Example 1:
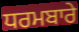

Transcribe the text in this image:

ਧਰਮਬਾਰੇ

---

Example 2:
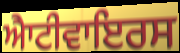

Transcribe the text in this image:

ਐਾਟੀਵਾਇਰਸ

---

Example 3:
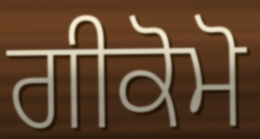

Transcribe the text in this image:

ਗੀਕੋਮੋ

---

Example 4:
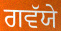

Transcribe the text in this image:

ਗਵੱਯੇ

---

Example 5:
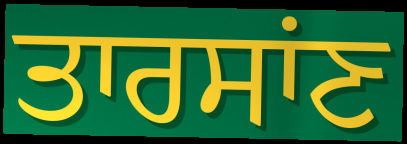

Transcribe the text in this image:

ਤਾਰਸਾਂਣ